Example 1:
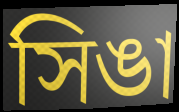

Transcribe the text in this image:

সিঙা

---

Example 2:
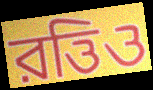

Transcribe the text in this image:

রত্তিও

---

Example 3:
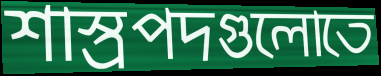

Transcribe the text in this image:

শাস্ত্রপদগুলোতে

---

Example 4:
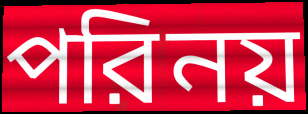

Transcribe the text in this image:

পরিনয়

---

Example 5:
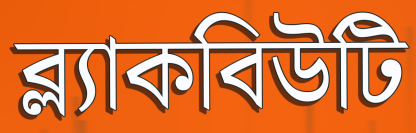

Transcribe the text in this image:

ব্ল্যাকবিউটি